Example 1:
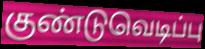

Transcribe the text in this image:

குண்டுவெடிப்பு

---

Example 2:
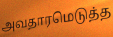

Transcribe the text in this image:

அவதாரமெடுத்த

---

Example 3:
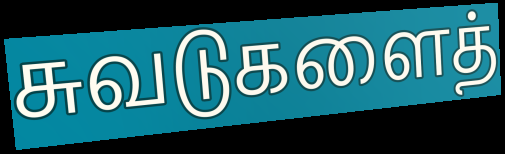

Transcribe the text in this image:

சுவடுகளைத்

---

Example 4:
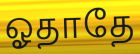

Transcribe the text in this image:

ஓதாதே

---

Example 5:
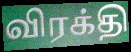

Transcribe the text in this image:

விரக்தி